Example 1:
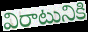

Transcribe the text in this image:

విరాటునికి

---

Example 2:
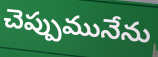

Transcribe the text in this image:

చెప్పుమునేను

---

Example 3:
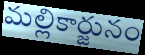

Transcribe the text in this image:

మల్లికార్జునం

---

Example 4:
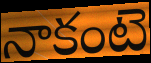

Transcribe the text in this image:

నాకంటె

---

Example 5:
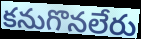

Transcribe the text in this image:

కనుగొనలేరు